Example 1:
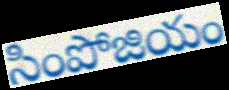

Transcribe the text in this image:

సింపోజియం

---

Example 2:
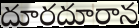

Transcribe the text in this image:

దూరదూరాన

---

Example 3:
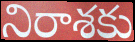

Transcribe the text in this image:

నిరాశకు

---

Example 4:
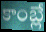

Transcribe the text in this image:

కాంబ్లే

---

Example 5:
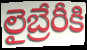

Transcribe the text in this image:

లైబ్రేరీకి